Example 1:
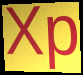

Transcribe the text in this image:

Xp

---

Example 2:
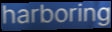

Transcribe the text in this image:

harboring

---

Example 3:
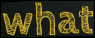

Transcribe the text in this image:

what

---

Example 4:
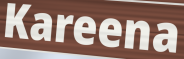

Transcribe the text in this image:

Kareena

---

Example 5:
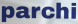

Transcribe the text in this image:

parchi